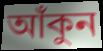
আঁকুন